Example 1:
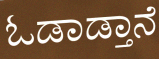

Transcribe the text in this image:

ಓಡಾಡ್ತಾನೆ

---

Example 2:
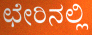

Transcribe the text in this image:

ಛೇರಿನಲ್ಲಿ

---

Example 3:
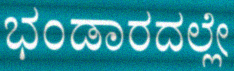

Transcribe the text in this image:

ಭಂಡಾರದಲ್ಲೇ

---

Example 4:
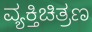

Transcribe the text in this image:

ವ್ಯಕ್ತಿಚಿತ್ರಣ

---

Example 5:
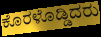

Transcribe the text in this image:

ಕೊರಳೊಡ್ಡಿದರು